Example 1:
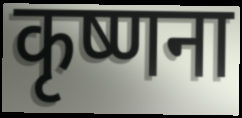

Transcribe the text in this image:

कृष्णना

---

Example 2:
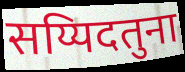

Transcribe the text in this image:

सय्यिदतुना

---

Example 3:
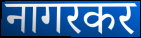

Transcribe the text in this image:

नागरकर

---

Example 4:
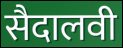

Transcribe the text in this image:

सैदालवी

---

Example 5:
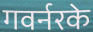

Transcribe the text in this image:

गवर्नरके